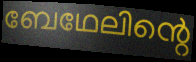
ബേഥേലിന്റെ